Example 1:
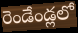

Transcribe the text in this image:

రెండేండ్లలో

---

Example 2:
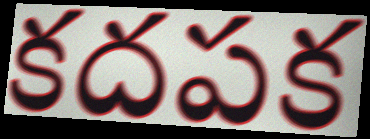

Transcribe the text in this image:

కదపక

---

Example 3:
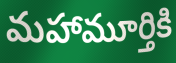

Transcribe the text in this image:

మహామూర్తికి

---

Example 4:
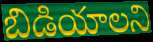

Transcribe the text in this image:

బిడియాలని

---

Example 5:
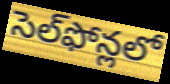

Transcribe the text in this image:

సెల్‌ఫోన్లలో